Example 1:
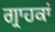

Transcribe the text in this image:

ਗ੍ਰਾਹਕਾਂ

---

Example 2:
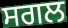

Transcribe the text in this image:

ਸਗਲ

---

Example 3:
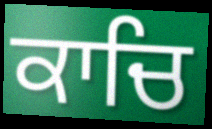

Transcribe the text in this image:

ਕਾਚਿ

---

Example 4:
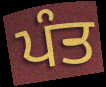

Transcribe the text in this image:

ਪੰਤ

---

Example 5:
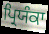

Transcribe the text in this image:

ਪ੍ਰਿਯੰਕਾ